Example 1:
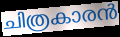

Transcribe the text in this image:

ചിത്രകാരൻ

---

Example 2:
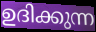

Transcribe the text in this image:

ഉദിക്കുന്ന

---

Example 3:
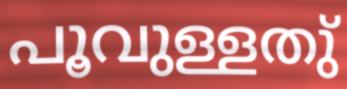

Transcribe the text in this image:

പൂവുള്ളതു്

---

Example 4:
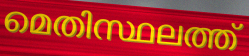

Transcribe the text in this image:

മെതിസ്ഥലത്ത്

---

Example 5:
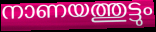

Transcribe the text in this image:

നാണയത്തുട്ടും